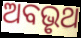
ଅବଭୃଥ